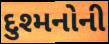
દુશ્મનોની